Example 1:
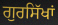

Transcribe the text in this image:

ਗੁਰਸਿੱਖਾਂ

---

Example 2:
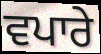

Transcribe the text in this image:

ਵਪਾਰੇ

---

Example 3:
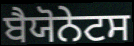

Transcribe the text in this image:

ਬੈਯੋਨੇਟਸ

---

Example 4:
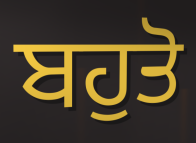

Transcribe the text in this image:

ਬਹੁਤੋ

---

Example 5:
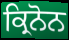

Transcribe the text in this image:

ਕ੍ਰਿਨੋਨ